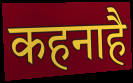
कहनाहै